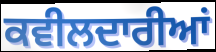
ਕਵੀਲਦਾਰੀਆਂ